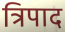
त्रिपाद